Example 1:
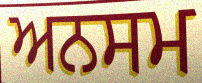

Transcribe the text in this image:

ਅਨਸਮ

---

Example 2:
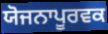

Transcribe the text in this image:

ਯੋਜਨਾਪੂਰਵਕ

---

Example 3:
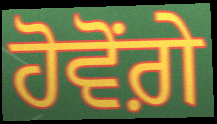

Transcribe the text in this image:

ਹੋਵੋਂਗ਼ੇ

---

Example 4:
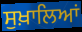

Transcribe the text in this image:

ਸੁਖ਼ਾਲਿਆਂ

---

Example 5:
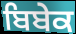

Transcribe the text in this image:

ਬਿਬੇਕ